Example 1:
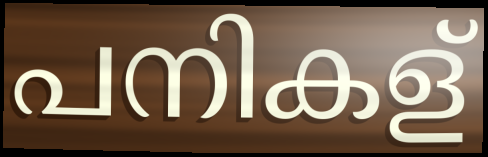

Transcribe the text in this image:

പനികള്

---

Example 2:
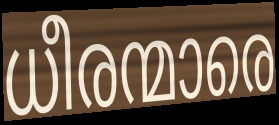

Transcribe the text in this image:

ധീരന്മാരെ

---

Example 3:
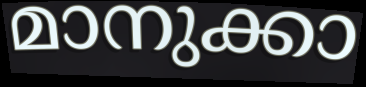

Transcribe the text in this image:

മാനുക്കാ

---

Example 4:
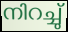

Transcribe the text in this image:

നിറച്ചു്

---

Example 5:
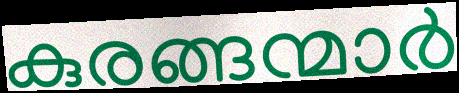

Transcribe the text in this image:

കുരങ്ങന്മാർ